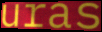
uras